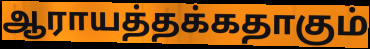
ஆராயத்தக்கதாகும்